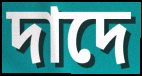
দাদে